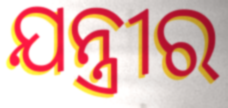
ଯନ୍ତ୍ରୀର